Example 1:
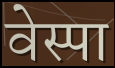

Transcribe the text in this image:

वेस्पा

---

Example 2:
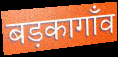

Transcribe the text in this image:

बड़कागाँव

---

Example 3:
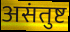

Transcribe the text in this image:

असंतुष्ट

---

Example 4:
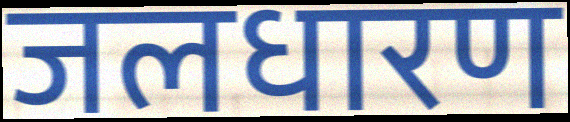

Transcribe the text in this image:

जलधारण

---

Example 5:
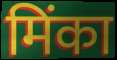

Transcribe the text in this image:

मिंका